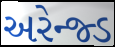
અરેન્જ્ડ